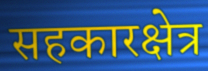
सहकारक्षेत्र